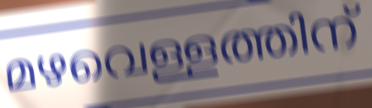
മഴവെള്ളത്തിന്